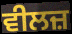
ਵੀਲਜ਼